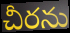
చీరను